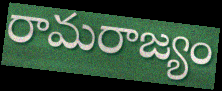
రామరాజ్యం